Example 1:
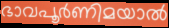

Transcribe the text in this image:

ഭാവപൂർണിമയാൽ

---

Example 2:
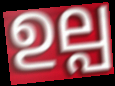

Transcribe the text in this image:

ഉല്പ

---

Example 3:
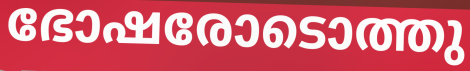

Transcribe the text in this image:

ഭോഷരോടൊത്തു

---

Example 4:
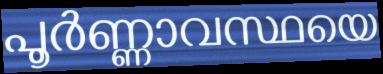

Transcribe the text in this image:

പൂർണ്ണാവസ്ഥയെ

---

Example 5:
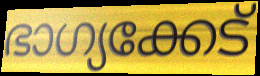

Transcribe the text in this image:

ഭാഗ്യക്കേട്